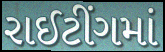
રાઈટીંગમાં